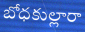
బోధకుల్లారా